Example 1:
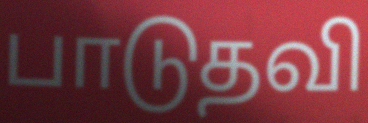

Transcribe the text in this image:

பாடுதவி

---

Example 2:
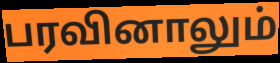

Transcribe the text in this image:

பரவினாலும்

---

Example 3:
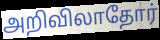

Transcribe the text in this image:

அறிவிலாதோர்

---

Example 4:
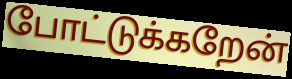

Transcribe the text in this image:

போட்டுக்கறேன்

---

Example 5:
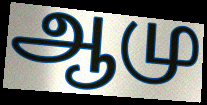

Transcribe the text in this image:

ஆமு